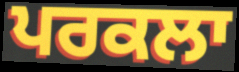
ਪਰਕਲਾ